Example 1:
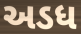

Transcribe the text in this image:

અડધ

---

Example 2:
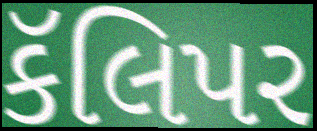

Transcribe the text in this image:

કૅલિપર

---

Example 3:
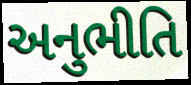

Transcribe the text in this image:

અનુભીતિ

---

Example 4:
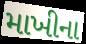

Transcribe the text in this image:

માખીના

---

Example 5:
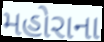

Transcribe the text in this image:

મહોરાના